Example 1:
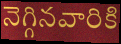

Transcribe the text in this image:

నెగ్గినవారికి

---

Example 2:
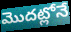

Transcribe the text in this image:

మొదట్లోనే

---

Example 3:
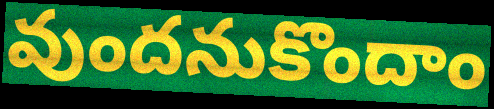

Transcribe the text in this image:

వుందనుకొందాం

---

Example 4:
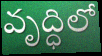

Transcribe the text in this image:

వృద్ధిలో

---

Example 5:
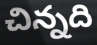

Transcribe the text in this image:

చిన్నది